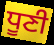
ਧੂਣੀ